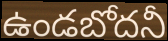
ఉండబోదనీ